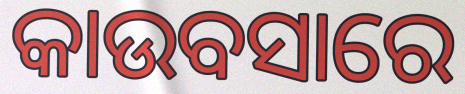
କାଉବସାରେ